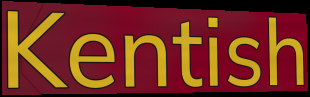
Kentish